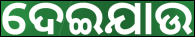
ଦେଇଯାଉ